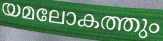
യമലോകത്തും